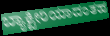
ಬ್ಯಾಕ್ಟೀರಿಯಾದಂತಹ